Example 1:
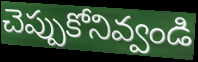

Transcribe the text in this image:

చెప్పుకోనివ్వండి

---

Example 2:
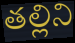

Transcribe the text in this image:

తల్లిని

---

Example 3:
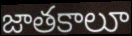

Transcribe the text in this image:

జాతకాలూ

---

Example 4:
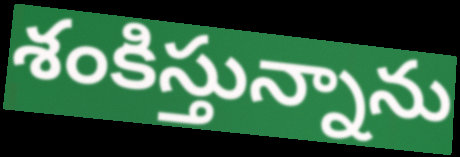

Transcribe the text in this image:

శంకిస్తున్నాను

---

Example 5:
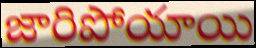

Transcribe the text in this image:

జారిపోయాయి